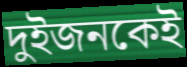
দুইজনকেই